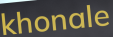
khonale